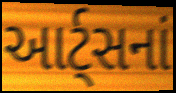
આર્ટ્સનાં